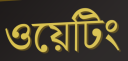
ওয়েটিং